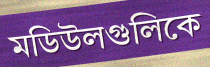
মডিউলগুলিকে